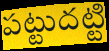
పట్టుదట్టి